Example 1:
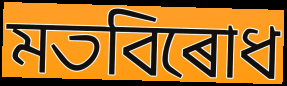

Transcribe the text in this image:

মতবিৰোধ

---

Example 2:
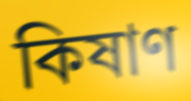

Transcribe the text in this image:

কিষাণ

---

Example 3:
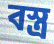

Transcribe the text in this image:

বস্ত্ৰ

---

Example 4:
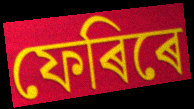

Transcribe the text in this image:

ফেৰিৰে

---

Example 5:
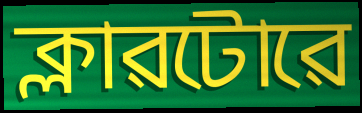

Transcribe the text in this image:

ক্লাৱটোৱে